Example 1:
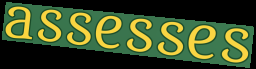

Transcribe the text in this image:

assesses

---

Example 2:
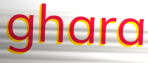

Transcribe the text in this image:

ghara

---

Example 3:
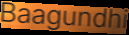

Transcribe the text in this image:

Baagundhi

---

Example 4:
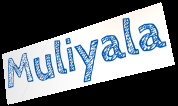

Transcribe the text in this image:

Muliyala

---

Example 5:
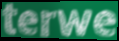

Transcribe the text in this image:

terwe